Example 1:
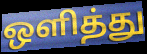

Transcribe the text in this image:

ஒளித்து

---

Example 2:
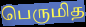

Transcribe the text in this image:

பெருமித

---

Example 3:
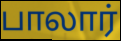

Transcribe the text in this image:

பாலார்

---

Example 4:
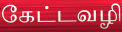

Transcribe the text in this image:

கேட்டவழி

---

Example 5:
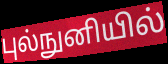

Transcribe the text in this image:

புல்நுனியில்